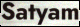
Satyam